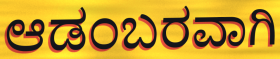
ಆಡಂಬರವಾಗಿ